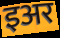
इअर